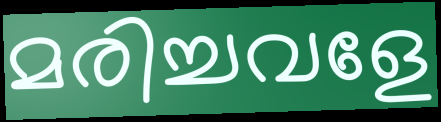
മരിച്ചവളേ